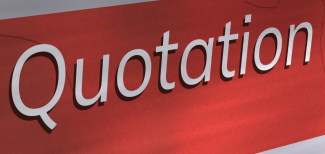
Quotation